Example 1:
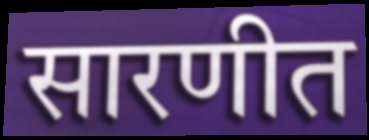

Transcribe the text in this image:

सारणीत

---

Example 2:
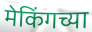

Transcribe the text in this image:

मेकिंगच्या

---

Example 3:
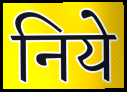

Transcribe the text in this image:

निये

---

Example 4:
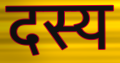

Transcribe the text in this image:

दस्य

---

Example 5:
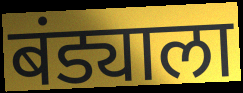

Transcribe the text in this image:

बंड्याला